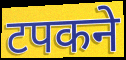
टपकने